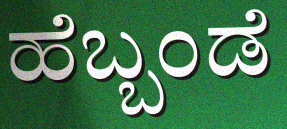
ಹೆಬ್ಬಂಡೆ